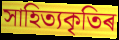
সাহিত্যকৃতিৰ